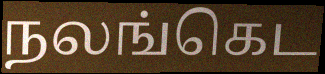
நலங்கெட